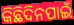
କିଛିଦିନପାଇଁ